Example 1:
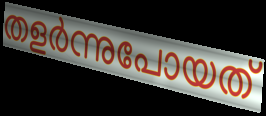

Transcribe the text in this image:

തളർന്നുപോയത്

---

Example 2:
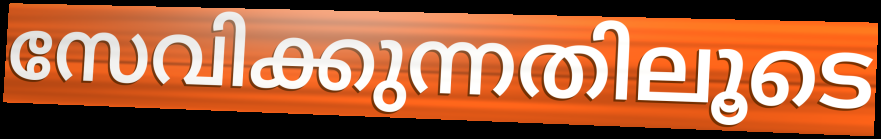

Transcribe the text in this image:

സേവിക്കുന്നതിലൂടെ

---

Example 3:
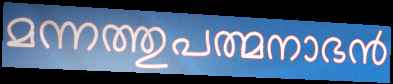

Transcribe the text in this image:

മന്നത്തുപത്മനാഭൻ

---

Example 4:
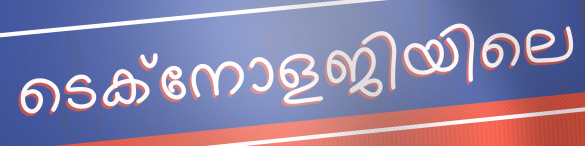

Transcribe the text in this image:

ടെക്നോളജിയിലെ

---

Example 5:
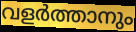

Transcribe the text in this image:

വളർത്താനും